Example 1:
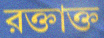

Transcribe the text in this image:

রক্তাক্ত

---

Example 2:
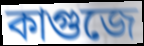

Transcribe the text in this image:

কাগুজে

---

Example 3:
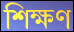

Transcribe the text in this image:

শিক্ষণ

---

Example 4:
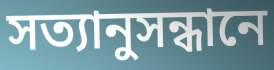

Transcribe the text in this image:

সত্যানুসন্ধানে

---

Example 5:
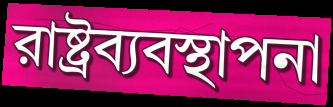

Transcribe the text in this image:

রাষ্ট্রব্যবস্থাপনা